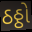
ઠઠ્ઠો